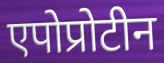
एपोप्रोटीन